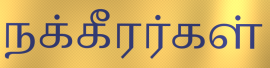
நக்கீரர்கள்